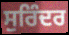
ਸੁਰਿੰਦਰ